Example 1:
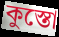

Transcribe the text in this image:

কুস্তো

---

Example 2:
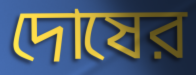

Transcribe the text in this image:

দোষের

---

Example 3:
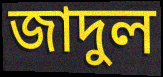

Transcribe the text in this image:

জাদুল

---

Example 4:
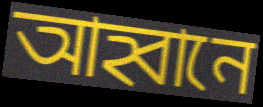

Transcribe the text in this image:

আহ্বানে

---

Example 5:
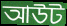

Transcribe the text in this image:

আউট